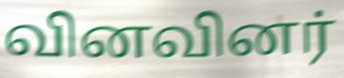
வினவினர்